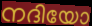
നദിയോ